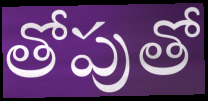
తోపుతో